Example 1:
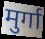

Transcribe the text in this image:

मुर्गा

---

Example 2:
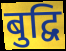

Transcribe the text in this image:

बुद्वि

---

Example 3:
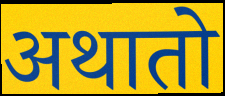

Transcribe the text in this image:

अथातो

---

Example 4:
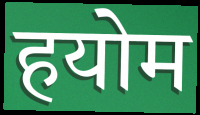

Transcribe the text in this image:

हयोम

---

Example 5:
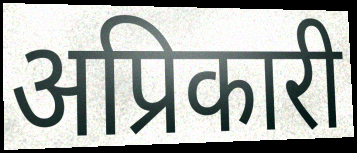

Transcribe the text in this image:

अप्रिकारी